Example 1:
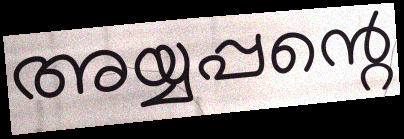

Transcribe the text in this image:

അയ്യപ്പന്റെ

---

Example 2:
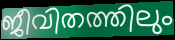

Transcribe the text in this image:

ജീവിതത്തിലും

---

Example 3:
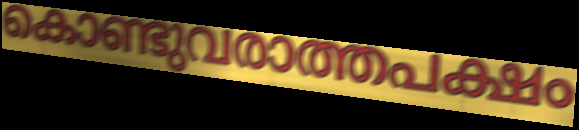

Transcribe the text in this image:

കൊണ്ടുവരാത്തപക്ഷം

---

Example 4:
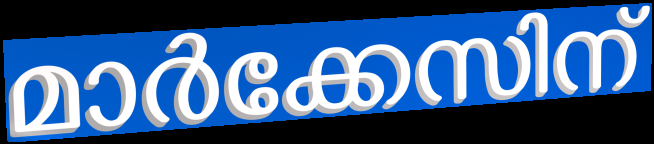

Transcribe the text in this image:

മാർക്കേസിന്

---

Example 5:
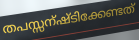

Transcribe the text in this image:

തപസ്സന്ഷ്ടിക്കേണ്ടത്